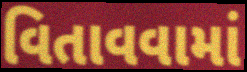
વિતાવવામાં